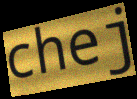
chej